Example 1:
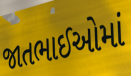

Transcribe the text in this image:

જાતભાઈઓમાં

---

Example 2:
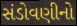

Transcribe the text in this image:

સંડોવણીનો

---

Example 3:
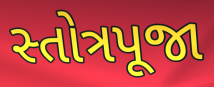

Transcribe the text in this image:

સ્તોત્રપૂજા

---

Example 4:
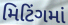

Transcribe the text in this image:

મિટિંગમાં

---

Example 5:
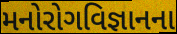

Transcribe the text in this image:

મનોરોગવિજ્ઞાનના